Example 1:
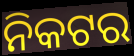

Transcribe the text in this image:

ନିକଟର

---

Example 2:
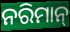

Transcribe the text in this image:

ନରିମାନ୍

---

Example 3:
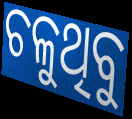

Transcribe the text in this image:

ଚଳୁଥିବୁ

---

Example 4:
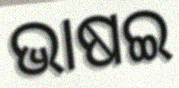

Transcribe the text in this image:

ଭାଷଇ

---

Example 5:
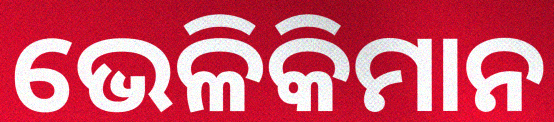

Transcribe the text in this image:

ଭେଳିକିମାନ